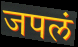
जपलं